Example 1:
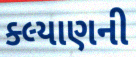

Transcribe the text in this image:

ક્લ્યાણની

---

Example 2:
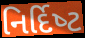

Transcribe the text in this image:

નિર્દિષ્‍ટ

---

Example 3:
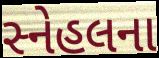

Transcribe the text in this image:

સ્નેહલના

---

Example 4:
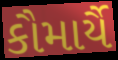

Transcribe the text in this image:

કૌમાર્યૈ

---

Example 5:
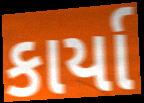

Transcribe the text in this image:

કાર્યા